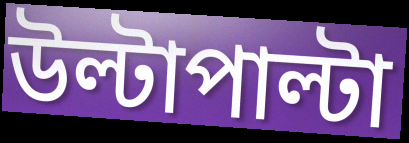
উল্টাপাল্টা